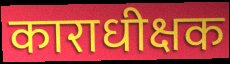
काराधीक्षक